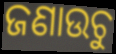
ଜଣାଉଚୁ